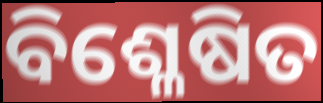
ବିଶ୍ଳେଷିତ